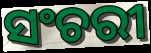
ସଂଚରୀ